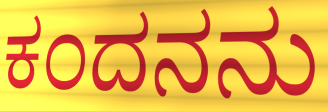
ಕಂದನನು